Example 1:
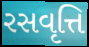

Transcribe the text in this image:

રસવૃત્તિ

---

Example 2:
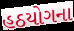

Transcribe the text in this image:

હઠયોગના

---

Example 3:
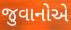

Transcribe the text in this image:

જુવાનોએ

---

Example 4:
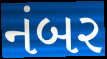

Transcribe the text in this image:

નંબર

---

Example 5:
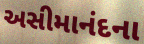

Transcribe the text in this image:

અસીમાનંદના